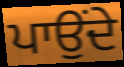
ਪਾਉਂਦੇ